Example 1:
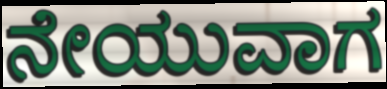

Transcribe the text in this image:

ನೇಯುವಾಗ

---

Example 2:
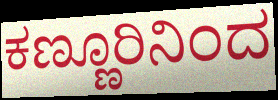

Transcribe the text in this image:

ಕಣ್ಣೂರಿನಿಂದ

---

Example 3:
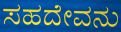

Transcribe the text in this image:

ಸಹದೇವನು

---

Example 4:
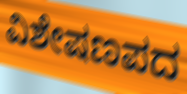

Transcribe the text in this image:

ವಿಶೇಷಣಪದ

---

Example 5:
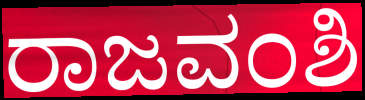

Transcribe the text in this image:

ರಾಜವಂಶಿ